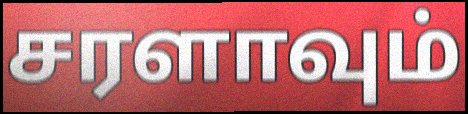
சரளாவும்